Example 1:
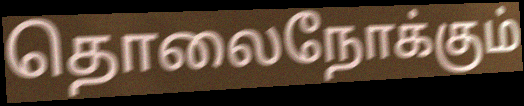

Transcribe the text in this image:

தொலைநோக்கும்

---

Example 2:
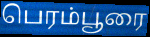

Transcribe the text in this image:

பெரம்பூரை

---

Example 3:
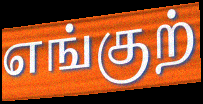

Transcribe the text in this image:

எங்குற்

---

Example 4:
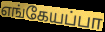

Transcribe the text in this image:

எங்கேயப்பா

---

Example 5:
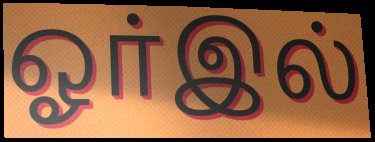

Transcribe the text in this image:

ஓர்இல்